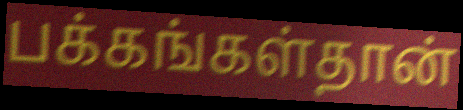
பக்கங்கள்தான்